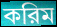
করিম